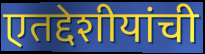
एतद्देशीयांची